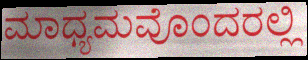
ಮಾಧ್ಯಮವೊಂದರಲ್ಲಿ